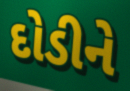
દોડીને